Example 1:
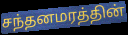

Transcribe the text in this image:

சந்தனமரத்தின்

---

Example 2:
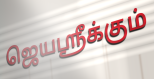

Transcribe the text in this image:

ஜெயஸ்ரீக்கும்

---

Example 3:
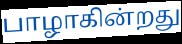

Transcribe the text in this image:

பாழாகின்றது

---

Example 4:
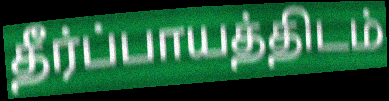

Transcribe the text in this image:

தீர்ப்பாயத்திடம்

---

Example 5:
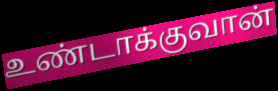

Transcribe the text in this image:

உண்டாக்குவான்